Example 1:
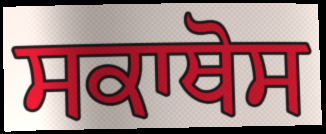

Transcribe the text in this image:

ਸਕਾਥੋਸ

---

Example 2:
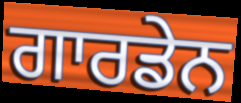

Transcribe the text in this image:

ਗਾਰਡੇਨ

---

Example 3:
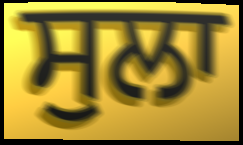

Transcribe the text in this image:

ਸੁਲਾ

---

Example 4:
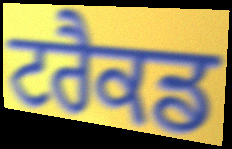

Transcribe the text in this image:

ਟਰੈਕਡ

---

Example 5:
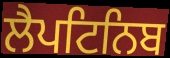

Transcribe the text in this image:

ਲੈਪਟਿਨਿਬ